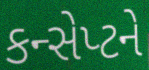
કન્સેપ્ટને